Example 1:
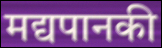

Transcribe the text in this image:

मद्यपानकी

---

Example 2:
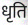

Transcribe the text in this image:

धृति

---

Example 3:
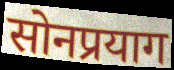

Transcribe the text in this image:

सोनप्रयाग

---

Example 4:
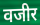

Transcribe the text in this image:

वजीर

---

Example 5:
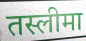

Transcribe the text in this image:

तस्लीमा